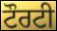
ਟੌਰਟੀ